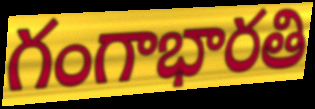
గంగాభారతి